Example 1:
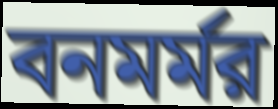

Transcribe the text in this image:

বনমর্মর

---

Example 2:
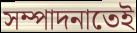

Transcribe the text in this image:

সম্পাদনাতেই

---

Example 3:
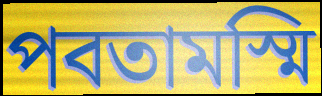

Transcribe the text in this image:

পবতামস্মি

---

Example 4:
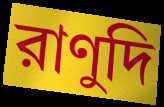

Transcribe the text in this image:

রাণুদি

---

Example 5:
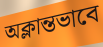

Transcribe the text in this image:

অক্লান্তভাবে